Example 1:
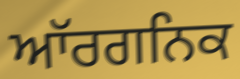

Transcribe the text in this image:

ਆੱਰਗਨਿਕ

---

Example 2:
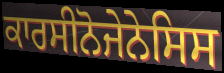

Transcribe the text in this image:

ਕਾਰਸੀਨੋਜੇਨੇਸਿਸ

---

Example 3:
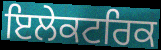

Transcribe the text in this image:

ਇਲੇਕਟਰਿਕ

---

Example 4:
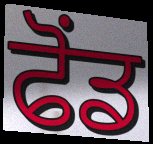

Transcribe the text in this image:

ਫੋਂਡ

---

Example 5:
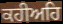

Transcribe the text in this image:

ਕਹੀਅਹਿ